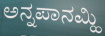
ಅನ್ನಪಾನಮ್ಹಿ